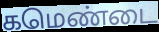
கமெண்டை